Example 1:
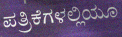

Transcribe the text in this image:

ಪತ್ರಿಕೆಗಳಲ್ಲಿಯೂ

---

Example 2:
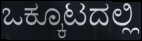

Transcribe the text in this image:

ಒಕ್ಕೂಟದಲ್ಲಿ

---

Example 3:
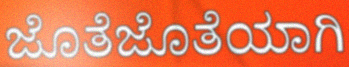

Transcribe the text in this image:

ಜೊತೆಜೊತೆಯಾಗಿ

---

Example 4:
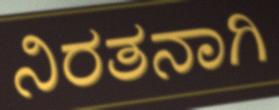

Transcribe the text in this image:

ನಿರತನಾಗಿ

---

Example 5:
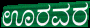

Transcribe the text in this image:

ಊರವರ